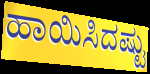
ಹಾಯಿಸಿದಷ್ಟು